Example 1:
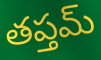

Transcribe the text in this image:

తప్తమ్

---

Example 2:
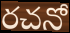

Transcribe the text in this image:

రచనో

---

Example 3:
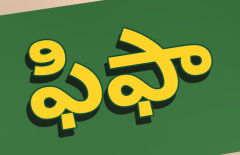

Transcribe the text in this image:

ఫిఫా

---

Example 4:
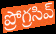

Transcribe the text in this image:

ప్రోగ్రసివ్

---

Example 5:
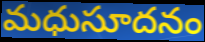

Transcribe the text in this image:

మధుసూదనం